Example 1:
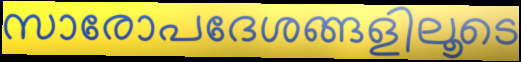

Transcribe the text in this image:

സാരോപദേശങ്ങളിലൂടെ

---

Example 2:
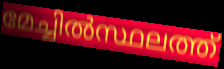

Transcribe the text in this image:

മേച്ചിൽസ്ഥലത്ത്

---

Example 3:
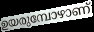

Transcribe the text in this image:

ഉയരുമ്പോഴാണ്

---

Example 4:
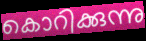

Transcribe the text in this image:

കൊറിക്കുന്നു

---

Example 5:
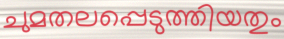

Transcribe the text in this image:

ചുമതലപ്പെടുത്തിയതും